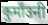
कुमाँउनी